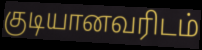
குடியானவரிடம்